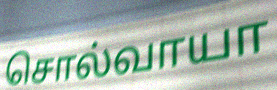
சொல்வாயா